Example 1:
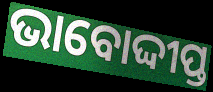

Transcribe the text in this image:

ଭାବୋଦ୍ଦୀପ୍ତ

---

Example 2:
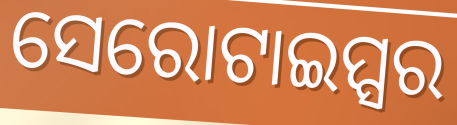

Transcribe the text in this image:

ସେରୋଟାଇପ୍ସର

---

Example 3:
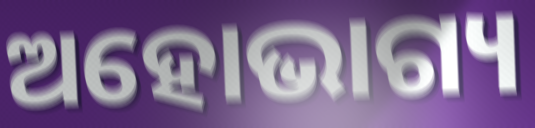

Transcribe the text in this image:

ଅହୋଭାଗ୍ୟ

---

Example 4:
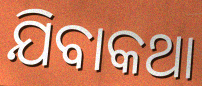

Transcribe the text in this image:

ଯିବାକଥା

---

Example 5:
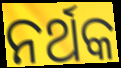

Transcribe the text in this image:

ନର୍ଥକ